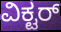
ವಿಕ್ಟರ್